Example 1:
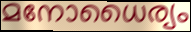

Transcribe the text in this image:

മനോധൈര്യം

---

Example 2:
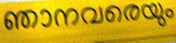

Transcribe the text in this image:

ഞാനവരെയും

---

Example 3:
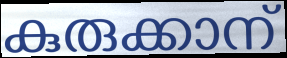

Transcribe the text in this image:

കുരുക്കാന്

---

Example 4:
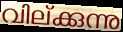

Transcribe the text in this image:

വില്ക്കുന്നു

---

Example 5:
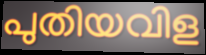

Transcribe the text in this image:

പുതിയവിള